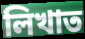
লিখাত